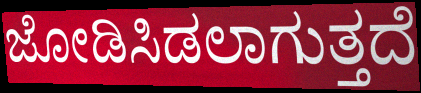
ಜೋಡಿಸಿಡಲಾಗುತ್ತದೆ